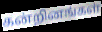
கன்றினங்கள்